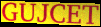
GUJCET